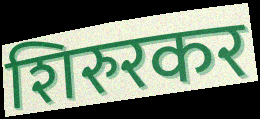
शिरुरकर